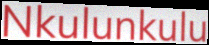
Nkulunkulu